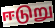
ஈடுறு